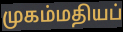
முகம்மதியப்